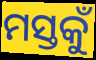
ମସ୍ତକୁଁ